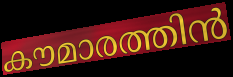
കൗമാരത്തിൻ